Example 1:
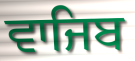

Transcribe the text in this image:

ਵਾਜਿਬ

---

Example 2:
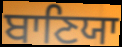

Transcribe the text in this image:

ਬਾਣਿਯਾ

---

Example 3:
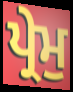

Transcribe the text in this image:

ਪ੍ਰੇਮੁ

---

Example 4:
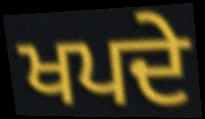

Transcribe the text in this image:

ਖਪਦੇ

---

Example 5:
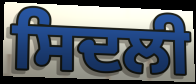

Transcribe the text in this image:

ਸਿਦਲੀ